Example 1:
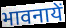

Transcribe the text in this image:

भावनायें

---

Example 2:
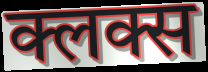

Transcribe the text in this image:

क्लक्स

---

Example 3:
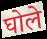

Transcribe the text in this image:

घोले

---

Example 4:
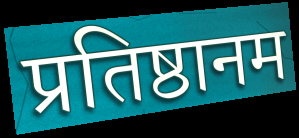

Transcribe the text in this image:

प्रतिष्ठानम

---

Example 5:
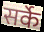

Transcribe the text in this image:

सर्के